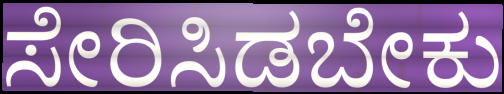
ಸೇರಿಸಿಡಬೇಕು